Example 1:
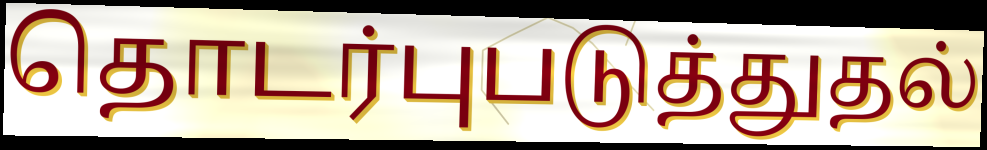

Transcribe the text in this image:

தொடர்புபடுத்துதல்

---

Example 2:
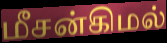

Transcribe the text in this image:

மீசன்கிமல்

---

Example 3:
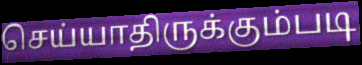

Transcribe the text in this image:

செய்யாதிருக்கும்படி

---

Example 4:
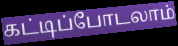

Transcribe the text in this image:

கட்டிப்போடலாம்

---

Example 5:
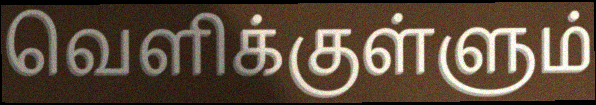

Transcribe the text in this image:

வெளிக்குள்ளும்